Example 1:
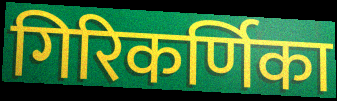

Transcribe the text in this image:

गिरिकर्णिका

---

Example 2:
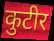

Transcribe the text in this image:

कुटीर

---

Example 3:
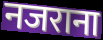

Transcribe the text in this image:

नजराना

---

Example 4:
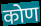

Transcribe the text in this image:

कोण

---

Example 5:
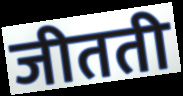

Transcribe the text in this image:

जीतती